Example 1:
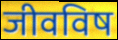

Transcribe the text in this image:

जीवविष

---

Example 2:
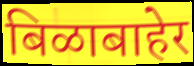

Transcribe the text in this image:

बिळाबाहेर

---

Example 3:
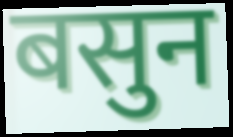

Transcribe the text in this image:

बसुन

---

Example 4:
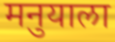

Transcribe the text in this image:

मनुयाला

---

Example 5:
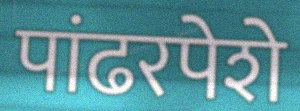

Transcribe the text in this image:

पांढरपेशे